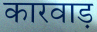
कारवाड़